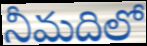
నీమదిలో